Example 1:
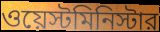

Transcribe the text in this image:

ওয়েস্টমিনিস্টার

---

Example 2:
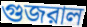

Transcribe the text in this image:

গুজরাল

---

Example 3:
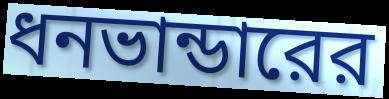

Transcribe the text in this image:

ধনভান্ডারের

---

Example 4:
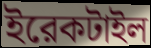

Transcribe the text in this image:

ইরেকটাইল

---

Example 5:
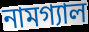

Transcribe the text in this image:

নামগ্যাল